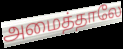
அமைத்தாலே